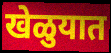
खेळुयात